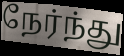
நேர்ந்து